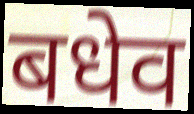
बधेव